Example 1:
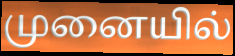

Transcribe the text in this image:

முனையில்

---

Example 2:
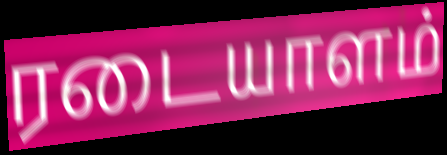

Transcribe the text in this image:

ரடையாளம்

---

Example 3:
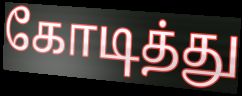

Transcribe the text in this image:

கோடித்து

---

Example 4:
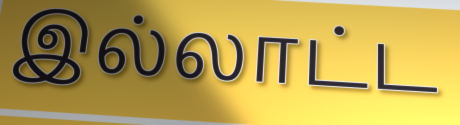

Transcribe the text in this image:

இல்லாட்ட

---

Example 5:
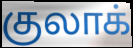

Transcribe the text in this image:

குலாக்